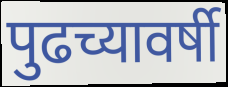
पुढच्यावर्षी